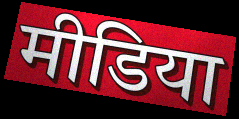
मीडिया